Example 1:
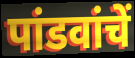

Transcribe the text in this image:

पांडवांचें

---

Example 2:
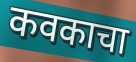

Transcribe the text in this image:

कवकाचा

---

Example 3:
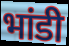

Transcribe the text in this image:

भांडी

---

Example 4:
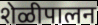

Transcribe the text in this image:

शेळीपालन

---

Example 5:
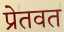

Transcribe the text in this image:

प्रेतवत